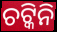
ଚଟ୍କିନି